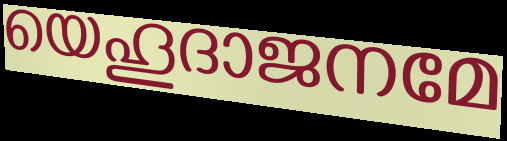
യെഹൂദാജനമേ